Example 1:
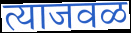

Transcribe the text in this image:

त्याजवळ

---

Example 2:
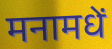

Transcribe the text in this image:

मनामधें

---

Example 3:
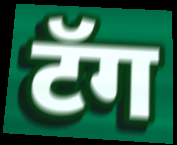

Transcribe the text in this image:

टॅग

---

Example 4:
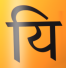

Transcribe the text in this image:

यि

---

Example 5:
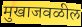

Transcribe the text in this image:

मुखाजवळील